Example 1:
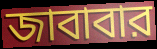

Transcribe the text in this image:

জাবাবার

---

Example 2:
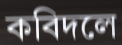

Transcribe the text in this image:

কবিদলে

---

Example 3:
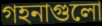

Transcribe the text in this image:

গহনাগুলো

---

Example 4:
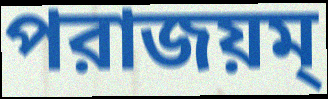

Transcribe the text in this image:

পরাজয়ম্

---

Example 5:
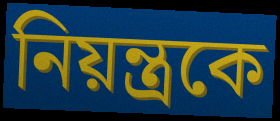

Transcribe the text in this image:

নিয়ন্ত্রকে